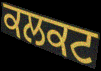
ਕਲਕਟ